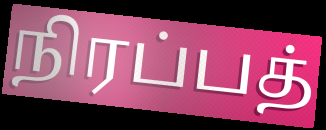
நிரப்பத்